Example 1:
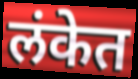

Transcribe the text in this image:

लंकेत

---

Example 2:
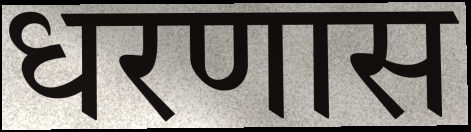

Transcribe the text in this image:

धरणास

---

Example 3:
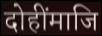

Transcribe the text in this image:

दोहींमाजि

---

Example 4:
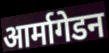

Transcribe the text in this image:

आर्मागेडन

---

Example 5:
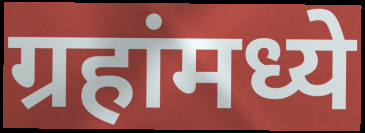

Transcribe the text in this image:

ग्रहांमध्ये